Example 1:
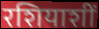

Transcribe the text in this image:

रशियाशीं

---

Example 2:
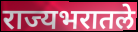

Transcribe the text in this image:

राज्यभरातले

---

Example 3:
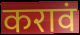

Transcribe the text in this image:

करावं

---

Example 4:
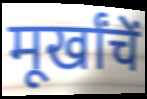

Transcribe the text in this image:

मूर्खांचें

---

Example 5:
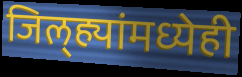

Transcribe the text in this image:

जिल्ह्यांमध्येही